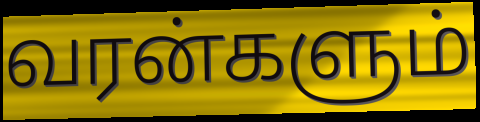
வரன்களும்